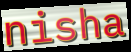
nisha